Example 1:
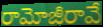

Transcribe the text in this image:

రామోజీరావే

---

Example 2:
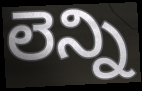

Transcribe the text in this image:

లెన్ని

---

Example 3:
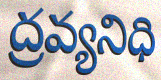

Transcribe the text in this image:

ద్రవ్యనిధి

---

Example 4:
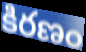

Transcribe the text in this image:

కిరణం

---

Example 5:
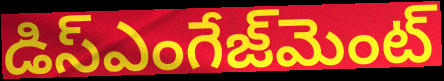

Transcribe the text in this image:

డిస్ఎంగేజ్‌మెంట్